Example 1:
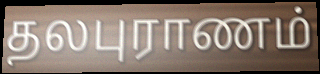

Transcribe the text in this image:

தலபுராணம்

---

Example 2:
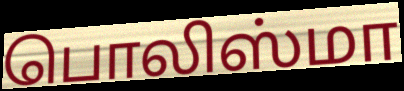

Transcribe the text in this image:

பொலிஸ்மா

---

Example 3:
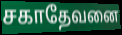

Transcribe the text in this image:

சகாதேவனை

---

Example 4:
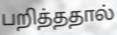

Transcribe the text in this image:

பறித்ததால்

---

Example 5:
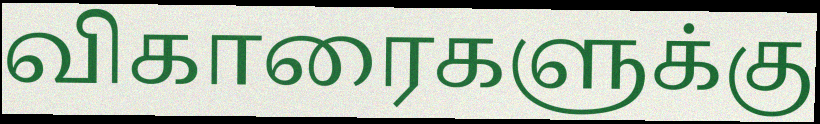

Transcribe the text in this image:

விகாரைகளுக்கு